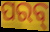
ପରବ୍